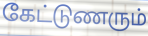
கேட்டுணரும்